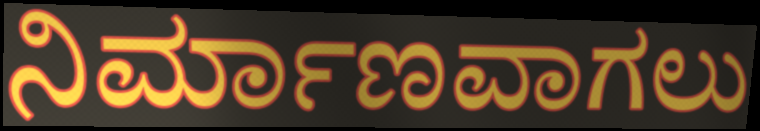
ನಿರ್ಮಾಣವಾಗಲು